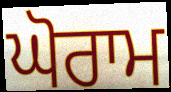
ਘੋਰਾਮ